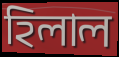
হিলাল